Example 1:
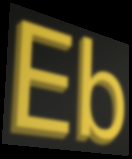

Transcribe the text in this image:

Eb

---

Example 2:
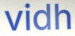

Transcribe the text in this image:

vidh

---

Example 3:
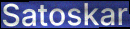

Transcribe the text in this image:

Satoskar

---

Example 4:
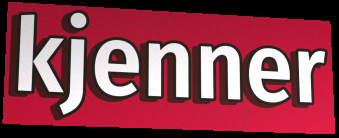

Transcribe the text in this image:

kjenner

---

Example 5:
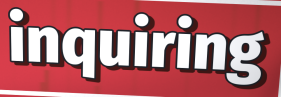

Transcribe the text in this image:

inquiring